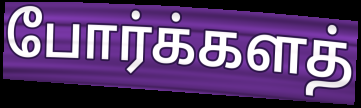
போர்க்களத்